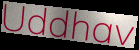
Uddhav